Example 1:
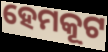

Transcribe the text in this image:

ହେମକୂଟ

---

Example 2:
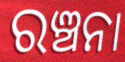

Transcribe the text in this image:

ରଞ୍ଚନା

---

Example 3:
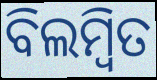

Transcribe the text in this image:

ବିଲମ୍ୱିତ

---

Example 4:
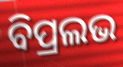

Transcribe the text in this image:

ବିପ୍ରଲଭ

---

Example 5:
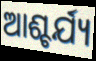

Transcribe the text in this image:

ଆଶ୍ଚର୍ଯ୍ୟ